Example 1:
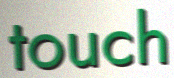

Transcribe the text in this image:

touch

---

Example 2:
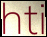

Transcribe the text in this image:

hti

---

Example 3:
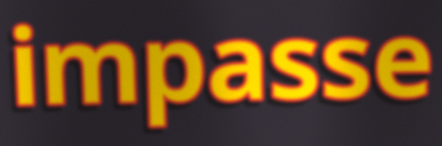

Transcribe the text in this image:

impasse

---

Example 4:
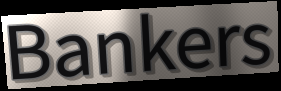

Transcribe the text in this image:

Bankers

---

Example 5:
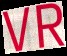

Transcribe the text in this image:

VR